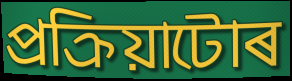
প্ৰক্ৰিয়াটোৰ